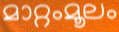
മാറ്റംമൂലം